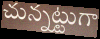
చున్నట్టుగా